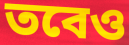
তবেও